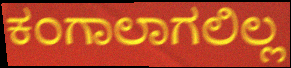
ಕಂಗಾಲಾಗಲಿಲ್ಲ